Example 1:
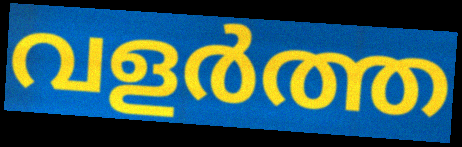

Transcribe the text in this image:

വളർത്ത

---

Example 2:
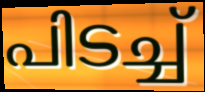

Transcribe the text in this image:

പിടച്ച്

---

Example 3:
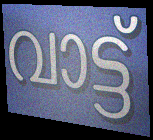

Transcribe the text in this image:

വാട്ട്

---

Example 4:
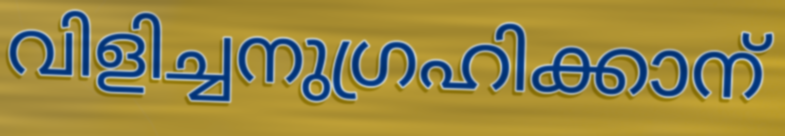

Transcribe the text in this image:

വിളിച്ചനുഗ്രഹിക്കാന്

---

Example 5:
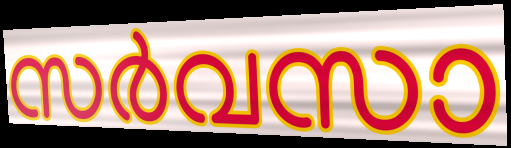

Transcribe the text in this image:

സർവസാ